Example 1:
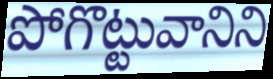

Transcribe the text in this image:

పోగొట్టువానిని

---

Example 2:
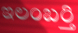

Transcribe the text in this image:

ఇలంబర్తి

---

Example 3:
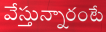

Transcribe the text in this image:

వేస్తున్నారంటే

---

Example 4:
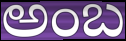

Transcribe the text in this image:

అంబ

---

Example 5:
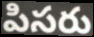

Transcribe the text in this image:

పిసరు